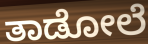
ತಾಡೋಲೆ